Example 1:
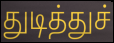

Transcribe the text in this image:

துடித்துச்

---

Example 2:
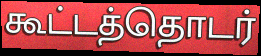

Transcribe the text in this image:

கூட்டத்தொடர்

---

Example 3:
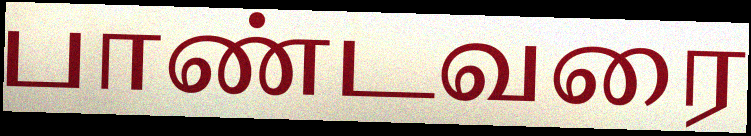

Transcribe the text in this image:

பாண்டவரை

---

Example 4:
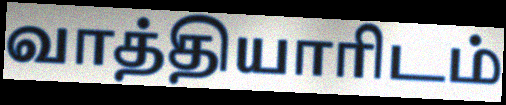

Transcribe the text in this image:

வாத்தியாரிடம்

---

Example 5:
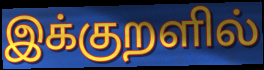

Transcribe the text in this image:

இக்குறளில்